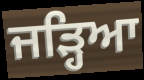
ਜੜ੍ਹਿਆ